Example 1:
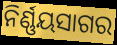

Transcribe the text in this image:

ନିର୍ଣ୍ଣୟସାଗର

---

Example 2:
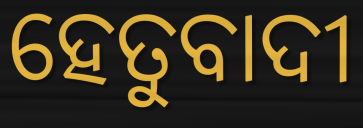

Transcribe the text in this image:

ହେତୁବାଦୀ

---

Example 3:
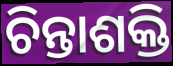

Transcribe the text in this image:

ଚିନ୍ତାଶକ୍ତି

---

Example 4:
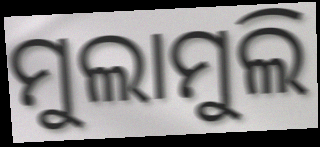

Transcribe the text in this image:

ମୁଲାମୁଲି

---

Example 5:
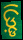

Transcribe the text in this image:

ଡ଼୍ଡି